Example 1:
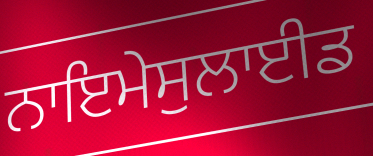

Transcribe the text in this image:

ਨਾਇਮੇਸੁਲਾਈਡ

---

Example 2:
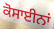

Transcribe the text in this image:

ਕੋਸਾਈਨਾਂ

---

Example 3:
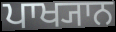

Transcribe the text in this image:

ਪਾਖ੍ਯਾਨ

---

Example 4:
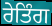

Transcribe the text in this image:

ਰੇਤਿੰਗ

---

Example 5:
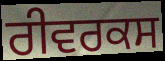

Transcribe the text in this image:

ਰੀਵਰਕਸ